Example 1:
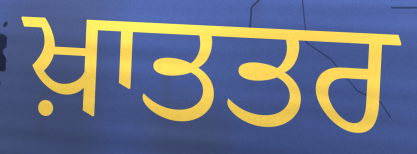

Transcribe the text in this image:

ਖ਼ਾਤਤਰ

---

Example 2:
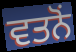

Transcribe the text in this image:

ਵਤਨੋਂ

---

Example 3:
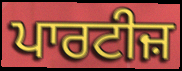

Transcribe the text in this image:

ਪਾਰਟੀਜ਼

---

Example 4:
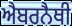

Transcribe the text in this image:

ਐਬਰਨੈਥੀ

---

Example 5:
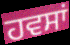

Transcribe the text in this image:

ਹਵਸਾਂ